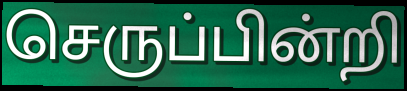
செருப்பின்றி